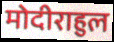
मोदीराहुल